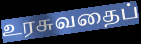
உரசுவதைப்